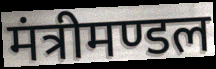
मंत्रीमण्डल